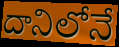
దానిలోనే